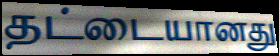
தட்டையானது